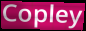
Copley